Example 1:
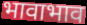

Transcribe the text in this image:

भावाभाव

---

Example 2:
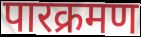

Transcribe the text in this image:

पारक्रमण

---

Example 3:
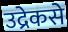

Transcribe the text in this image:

उद्रेकसे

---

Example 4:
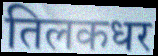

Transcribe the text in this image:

तिलकधर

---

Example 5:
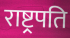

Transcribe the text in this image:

राष्ट्र्रपति